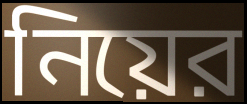
নিয়ের